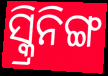
ସ୍କ୍ରିନିଙ୍ଗ